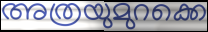
അത്രയുമുറക്കെ